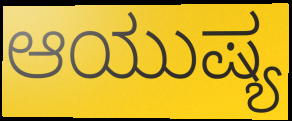
ಆಯುಷ್ಯ